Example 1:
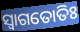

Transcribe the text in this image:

ସ୍ଵାଗତୋତିଃ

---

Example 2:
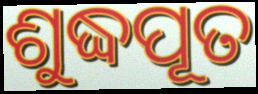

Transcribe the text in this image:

ଶୁଦ୍ଧପୂତ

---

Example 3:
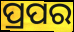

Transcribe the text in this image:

ପ୍ରପର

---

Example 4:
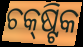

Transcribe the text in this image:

ଚକ୍‌ଷ୍ଟିକ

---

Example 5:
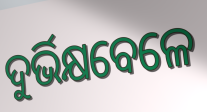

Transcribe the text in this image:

ଦୁର୍ଭିକ୍ଷବେଳେ